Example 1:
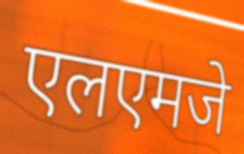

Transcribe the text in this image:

एलएमजे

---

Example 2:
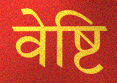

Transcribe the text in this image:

वेष्टि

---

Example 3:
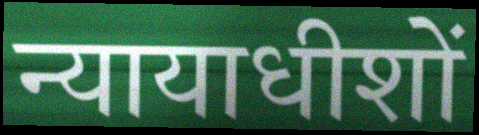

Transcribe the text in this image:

न्यायाधीशों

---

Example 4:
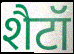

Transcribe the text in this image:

शैटॉ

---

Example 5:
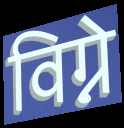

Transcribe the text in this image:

विग्ने